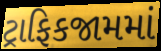
ટ્રાફિકજામમાં